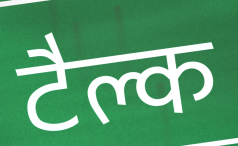
टैल्क